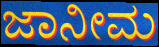
ಜಾನೀಮ